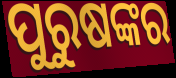
ପୁରୁଷଙ୍କର